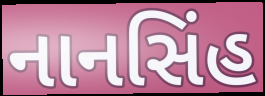
નાનસિંહ